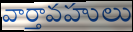
వార్తావహులు